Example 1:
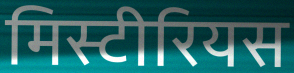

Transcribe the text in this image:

मिस्टीरियस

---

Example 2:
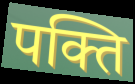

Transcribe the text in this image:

पक्ति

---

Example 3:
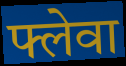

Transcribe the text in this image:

फ्लेवा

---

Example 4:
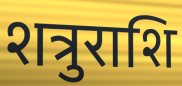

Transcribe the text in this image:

शत्रुराशि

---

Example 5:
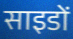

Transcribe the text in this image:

साइडों